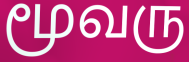
மூவரு